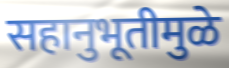
सहानुभूतीमुळे